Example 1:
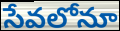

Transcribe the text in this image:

సేవలోనూ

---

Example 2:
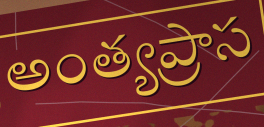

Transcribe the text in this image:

అంత్యప్రాస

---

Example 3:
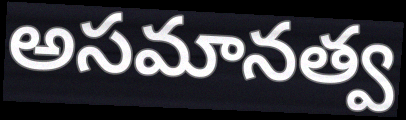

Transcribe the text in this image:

అసమానత్వ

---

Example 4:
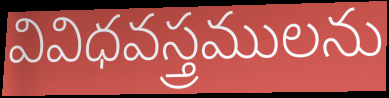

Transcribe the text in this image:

వివిధవస్త్రములను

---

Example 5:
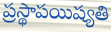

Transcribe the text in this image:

ప్రస్థాపయిష్యతి